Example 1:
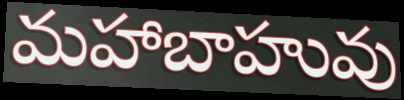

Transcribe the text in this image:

మహాబాహువు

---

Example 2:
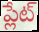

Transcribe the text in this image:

ప్లేట్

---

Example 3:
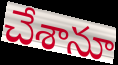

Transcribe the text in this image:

చేశానూ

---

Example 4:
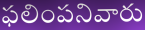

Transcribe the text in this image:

ఫలింపనివారు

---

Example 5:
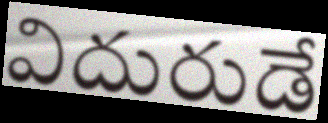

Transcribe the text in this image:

విదురుడే